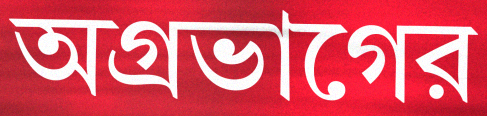
অগ্রভাগের